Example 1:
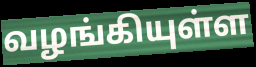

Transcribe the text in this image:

வழங்கியுள்ள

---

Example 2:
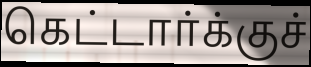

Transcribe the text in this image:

கெட்டார்க்குச்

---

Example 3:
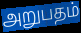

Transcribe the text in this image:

அறுபதம்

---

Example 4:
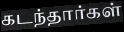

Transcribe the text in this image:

கடந்தார்கள்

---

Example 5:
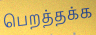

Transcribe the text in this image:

பெறத்தக்க